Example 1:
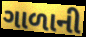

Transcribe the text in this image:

ગાળાની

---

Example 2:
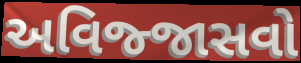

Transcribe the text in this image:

અવિજ્જાસવો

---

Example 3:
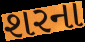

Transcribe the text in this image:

શરના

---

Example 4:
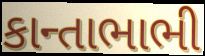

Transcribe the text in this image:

કાન્તાભાભી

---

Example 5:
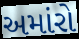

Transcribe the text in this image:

અમાંરો